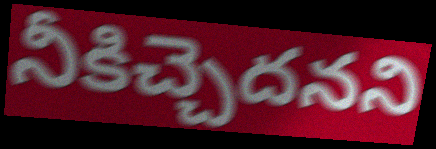
నీకిచ్చెదనని